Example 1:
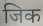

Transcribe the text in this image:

जिक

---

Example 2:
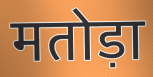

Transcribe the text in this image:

मतोड़ा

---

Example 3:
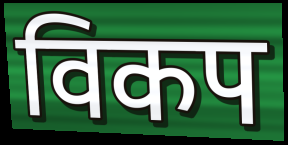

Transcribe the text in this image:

विकप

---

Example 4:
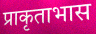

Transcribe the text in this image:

प्राकृताभास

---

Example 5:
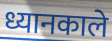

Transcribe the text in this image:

ध्यानकाले